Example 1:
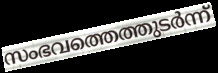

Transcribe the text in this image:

സംഭവത്തെത്തുടർന്ന്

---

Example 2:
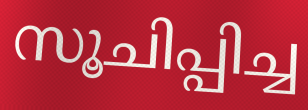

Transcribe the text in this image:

സൂചിപ്പിച്ച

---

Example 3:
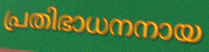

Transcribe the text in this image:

പ്രതിഭാധനനായ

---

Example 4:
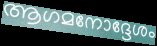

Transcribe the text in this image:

ആഗമനോദ്ദേശം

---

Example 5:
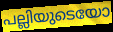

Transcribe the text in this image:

പല്ലിയുടെയോ